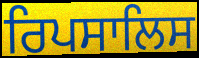
ਰਿਪਸਾਲਿਸ